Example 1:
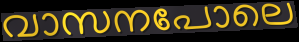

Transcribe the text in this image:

വാസനപോലെ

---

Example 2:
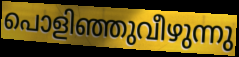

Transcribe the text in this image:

പൊളിഞ്ഞുവീഴുന്നു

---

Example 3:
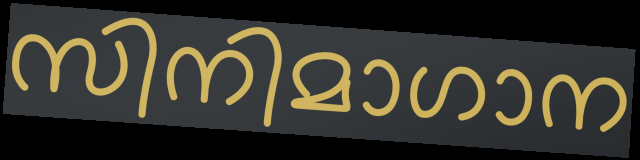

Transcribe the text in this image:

സിനിമാഗാന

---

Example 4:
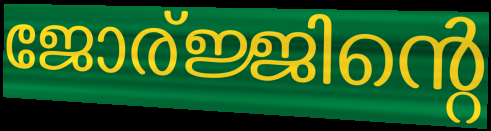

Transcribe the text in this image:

ജോര്ജ്ജിന്റെ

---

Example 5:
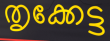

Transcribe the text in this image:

തൃക്കേട്ട